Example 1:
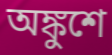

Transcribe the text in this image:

অঙ্কুশে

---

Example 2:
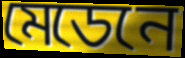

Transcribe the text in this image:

মেডেনে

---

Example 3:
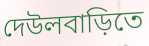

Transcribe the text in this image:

দেউলবাড়িতে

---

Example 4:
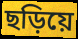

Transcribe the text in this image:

ছড়িয়ে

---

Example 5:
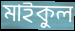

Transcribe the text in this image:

মাইকুল